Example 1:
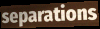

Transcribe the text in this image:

separations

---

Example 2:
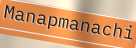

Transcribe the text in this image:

Manapmanachi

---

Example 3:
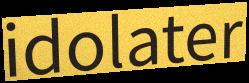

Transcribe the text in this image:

idolater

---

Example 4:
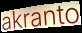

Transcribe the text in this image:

akranto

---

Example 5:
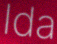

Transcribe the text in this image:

lda